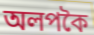
অলপকৈ